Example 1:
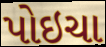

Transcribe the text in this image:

પોઇચા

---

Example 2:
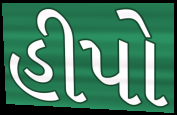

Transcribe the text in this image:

હીપો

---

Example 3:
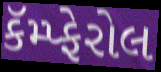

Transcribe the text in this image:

કૅમ્પ્ફેરોલ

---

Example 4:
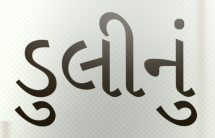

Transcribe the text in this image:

ડુલીનું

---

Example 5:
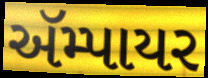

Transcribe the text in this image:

ઍમ્પાયર